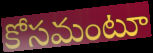
కోసమంటూ